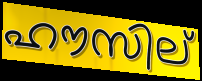
ഹൗസില്